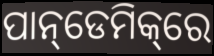
ପାନ୍‌ଡେମିକ୍‌ରେ